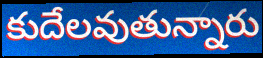
కుదేలవుతున్నారు